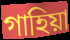
গাহিয়া